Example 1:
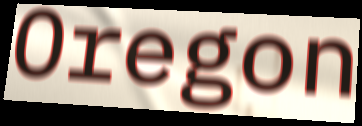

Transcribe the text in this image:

Oregon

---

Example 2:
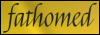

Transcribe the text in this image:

fathomed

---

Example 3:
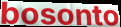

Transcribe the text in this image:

bosonto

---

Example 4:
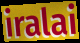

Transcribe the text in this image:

iralai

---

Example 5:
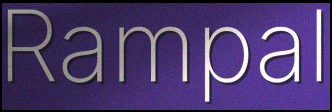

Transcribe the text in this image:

Rampal